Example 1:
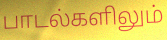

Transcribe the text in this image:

பாடல்களிலும்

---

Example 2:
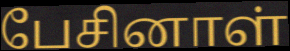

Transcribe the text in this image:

பேசினாள்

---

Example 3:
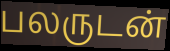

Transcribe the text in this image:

பலருடன்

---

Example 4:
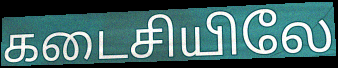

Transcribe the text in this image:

கடைசியிலே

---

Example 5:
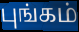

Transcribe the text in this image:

புங்கம்